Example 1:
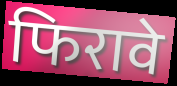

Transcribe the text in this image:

फिरावे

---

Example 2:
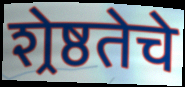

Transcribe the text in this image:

श्रेष्ठतेचे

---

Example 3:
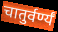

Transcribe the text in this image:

चातुर्वर्ण्यं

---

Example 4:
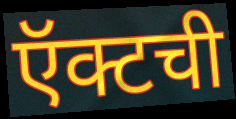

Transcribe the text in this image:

ऍक्टची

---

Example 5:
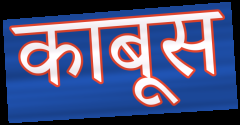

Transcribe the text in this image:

काबूस